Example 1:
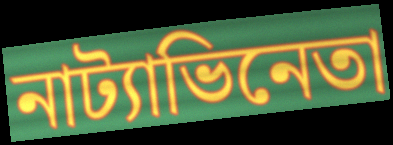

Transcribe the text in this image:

নাট্যাভিনেতা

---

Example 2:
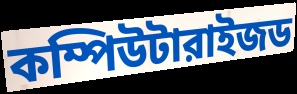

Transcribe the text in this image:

কম্পিউটারাইজড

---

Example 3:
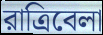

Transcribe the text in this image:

রাত্রিবেলা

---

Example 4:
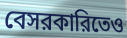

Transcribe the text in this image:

বেসরকারিতেও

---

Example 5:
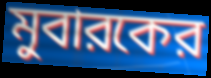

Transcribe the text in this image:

মুবারকের